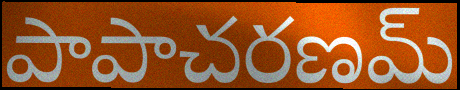
పాపాచరణమ్